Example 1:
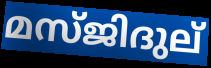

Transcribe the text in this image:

മസ്ജിദുല്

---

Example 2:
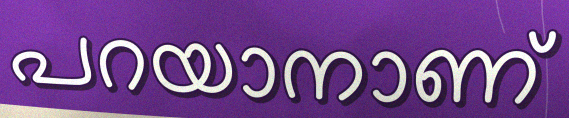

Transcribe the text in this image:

പറയാനാണ്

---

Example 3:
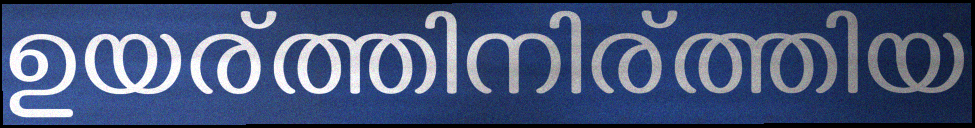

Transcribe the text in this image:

ഉയര്ത്തിനിര്ത്തിയ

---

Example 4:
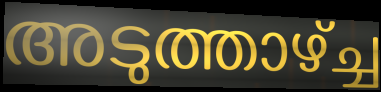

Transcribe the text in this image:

അടുത്താഴ്ച്ച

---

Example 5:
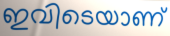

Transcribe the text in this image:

ഇവിടെയാണ്